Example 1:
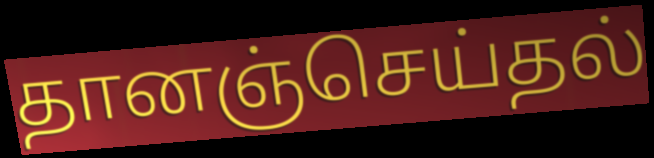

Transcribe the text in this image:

தானஞ்செய்தல்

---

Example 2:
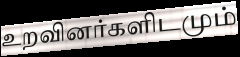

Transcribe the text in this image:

உறவினர்களிடமும்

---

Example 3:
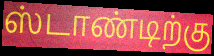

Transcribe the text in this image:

ஸ்டாண்டிற்கு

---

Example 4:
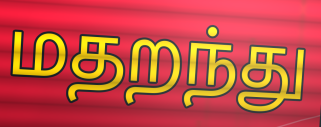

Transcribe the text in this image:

மதறந்து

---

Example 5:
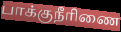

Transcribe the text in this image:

பாக்குநீரிணை